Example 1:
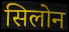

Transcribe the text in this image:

सिलोन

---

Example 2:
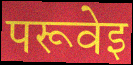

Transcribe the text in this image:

परूवेइ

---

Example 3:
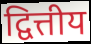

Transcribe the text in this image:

द्वित्तीय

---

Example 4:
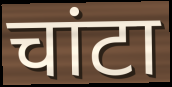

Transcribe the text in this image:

चांटा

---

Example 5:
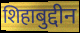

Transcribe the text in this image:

शिहाबुद्दीन